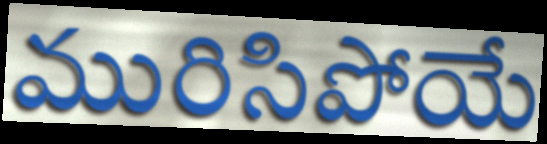
మురిసిపోయే